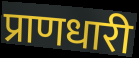
प्राणधारी